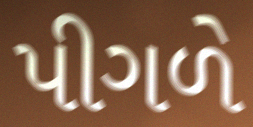
પીગળે